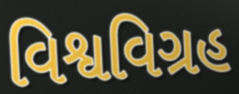
વિશ્વવિગ્રહ